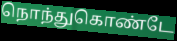
நொந்துகொண்டே